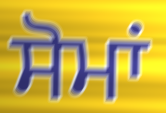
ਸੋਮਾਂ